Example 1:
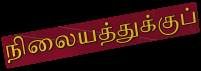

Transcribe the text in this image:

நிலையத்துக்குப்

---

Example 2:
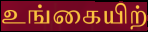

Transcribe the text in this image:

உங்கையிற்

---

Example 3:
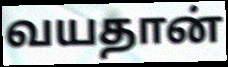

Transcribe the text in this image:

வயதான்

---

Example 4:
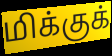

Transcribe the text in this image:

மிக்குக்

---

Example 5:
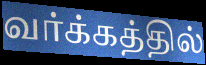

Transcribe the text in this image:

வர்க்கத்தில்